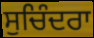
ਸੁਚਿੰਦਰਾ